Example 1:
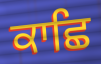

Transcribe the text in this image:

ਕਾਛਿ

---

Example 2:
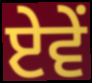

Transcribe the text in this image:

ਏਵੇਂ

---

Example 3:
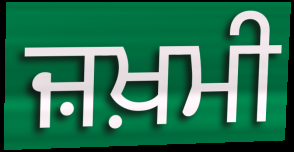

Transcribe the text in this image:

ਜ਼ਖ਼ਮੀ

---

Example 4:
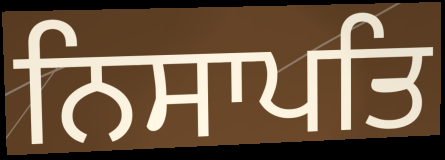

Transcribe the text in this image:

ਨਿਸਾਪਤਿ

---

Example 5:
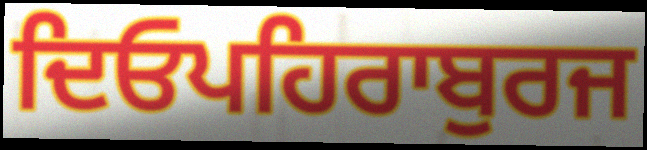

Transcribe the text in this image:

ਦਿਓਪਹਿਰਾਬੁਰਜ